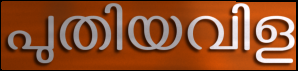
പുതിയവിള